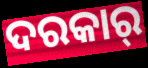
ଦରକାର୍